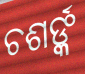
ଚଶର୍ଙ୍କ